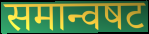
समान्वषट